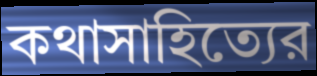
কথাসাহিত্যের